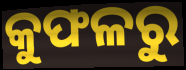
କୁଫଳରୁ